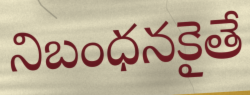
నిబంధనకైతే